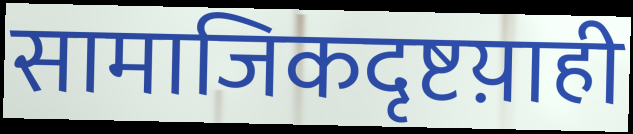
सामाजिकदृष्टय़ाही